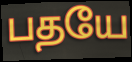
பதயே